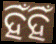
ହିଁହିଁ